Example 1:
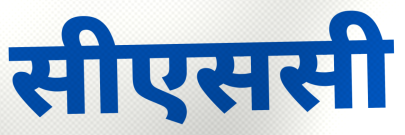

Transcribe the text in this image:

सीएससी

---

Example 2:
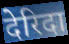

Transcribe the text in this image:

देरिदा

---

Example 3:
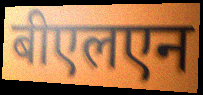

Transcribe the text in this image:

बीएलएन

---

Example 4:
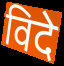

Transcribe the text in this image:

विदे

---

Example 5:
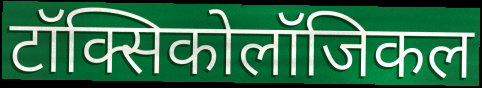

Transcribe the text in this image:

टॉक्सिकोलॉजिकल